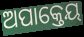
ଅପାକ୍ତେୟ